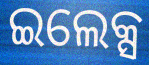
ଇଲେକ୍ସ